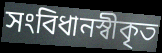
সংবিধানস্বীকৃত